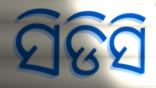
ସିଡିସି